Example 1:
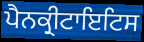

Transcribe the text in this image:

ਪੈਨਕ੍ਰੀਟਾਇਟਿਸ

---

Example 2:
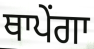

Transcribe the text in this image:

ਥਾਪੇਂਗਾ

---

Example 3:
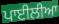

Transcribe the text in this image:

ਪਾਈਲੀਆ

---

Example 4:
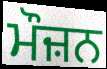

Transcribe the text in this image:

ਮੌਜ਼ਨ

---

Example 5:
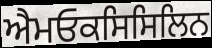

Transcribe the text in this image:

ਐਮਓਕਸਿਸਿਲਿਨ